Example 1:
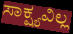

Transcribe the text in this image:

ಸಾಕ್ಷ್ಯವಿಲ್ಲ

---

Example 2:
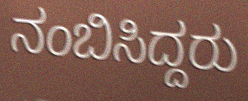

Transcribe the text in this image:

ನಂಬಿಸಿದ್ದರು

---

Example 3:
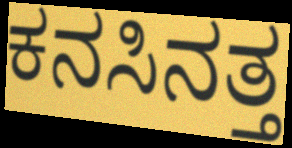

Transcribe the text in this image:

ಕನಸಿನತ್ತ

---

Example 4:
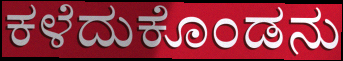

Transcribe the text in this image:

ಕಳೆದುಕೊಂಡನು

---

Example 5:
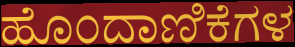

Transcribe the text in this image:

ಹೊಂದಾಣಿಕೆಗಳ